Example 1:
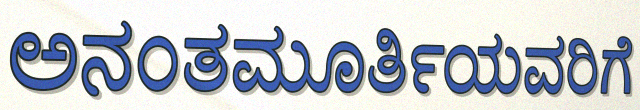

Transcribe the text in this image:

ಅನಂತಮೂರ್ತಿಯವರಿಗೆ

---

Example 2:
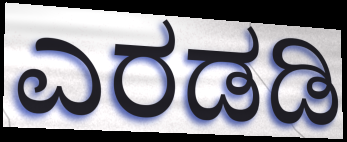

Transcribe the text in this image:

ಎರಡಡಿ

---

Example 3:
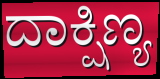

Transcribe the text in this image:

ದಾಕ್ಷಿಣ್ಯ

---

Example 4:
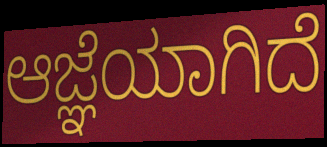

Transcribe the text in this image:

ಆಜ್ಞೆಯಾಗಿದೆ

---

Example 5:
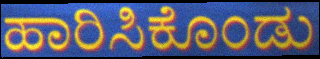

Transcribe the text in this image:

ಹಾರಿಸಿಕೊಂಡು